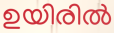
ഉയിരിൽ